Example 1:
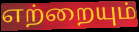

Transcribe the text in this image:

எற்றையும்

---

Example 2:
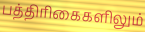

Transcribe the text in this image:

பத்திரிகைகளிலும்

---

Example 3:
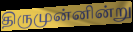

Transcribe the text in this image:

திருமுன்னின்று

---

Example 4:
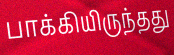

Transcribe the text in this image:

பாக்கியிருந்தது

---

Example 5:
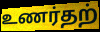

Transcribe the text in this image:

உணர்தற்